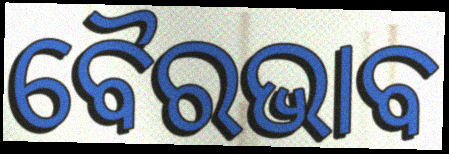
ବୈରଭାବ